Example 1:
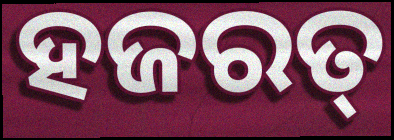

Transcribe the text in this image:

ହଜରତ୍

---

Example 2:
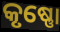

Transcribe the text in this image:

କୃଷ୍ଣୋ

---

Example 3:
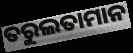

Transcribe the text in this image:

ତରୁଲତାମାନ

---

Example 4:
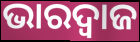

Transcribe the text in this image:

ଭାରଦ୍ୱାଜ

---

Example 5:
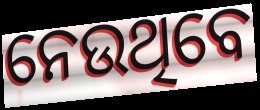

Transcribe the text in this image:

ନେଉଥିବେ